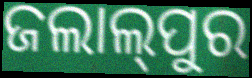
ଜଲାଲ୍‍ପୁର